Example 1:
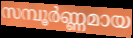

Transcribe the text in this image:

സമ്പൂർണ്ണമായ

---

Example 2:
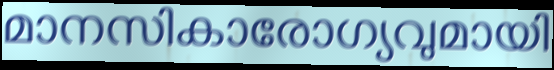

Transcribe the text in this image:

മാനസികാരോഗ്യവുമായി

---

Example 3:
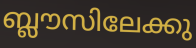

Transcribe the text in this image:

ബ്ലൗസിലേക്കു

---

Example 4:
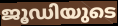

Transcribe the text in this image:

ജൂഡിയുടെ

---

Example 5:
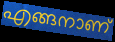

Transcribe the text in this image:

എങ്ങനാണ്